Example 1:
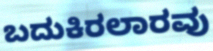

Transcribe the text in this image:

ಬದುಕಿರಲಾರವು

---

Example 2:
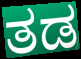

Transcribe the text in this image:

ತಡ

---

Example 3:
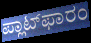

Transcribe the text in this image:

ಪ್ಲಾಟ್‌ಫಾರಂ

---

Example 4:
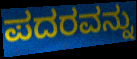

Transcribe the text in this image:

ಪದರವನ್ನು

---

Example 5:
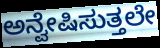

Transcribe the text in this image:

ಅನ್ವೇಷಿಸುತ್ತಲೇ